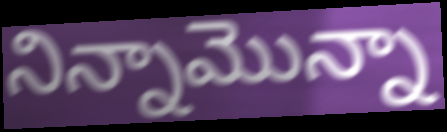
నిన్నామొన్నా